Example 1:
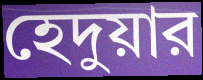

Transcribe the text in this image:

হেদুয়ার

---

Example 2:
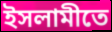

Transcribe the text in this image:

ইসলামীতে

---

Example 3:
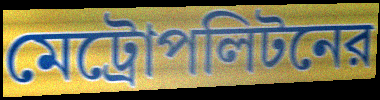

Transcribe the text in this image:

মেট্রোপলিটনের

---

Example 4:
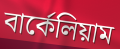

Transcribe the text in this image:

বার্কেলিয়াম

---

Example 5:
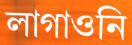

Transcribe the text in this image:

লাগাওনি